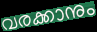
വരക്കാനും